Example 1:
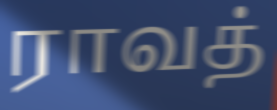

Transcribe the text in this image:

ராவத்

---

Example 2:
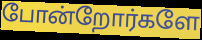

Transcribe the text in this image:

போன்றோர்களே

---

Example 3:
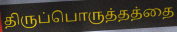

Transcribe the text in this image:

திருப்பொருத்தத்தை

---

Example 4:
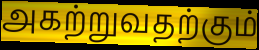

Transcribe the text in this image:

அகற்றுவதற்கும்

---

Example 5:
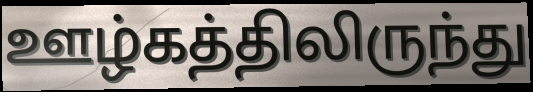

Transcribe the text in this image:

ஊழ்கத்திலிருந்து